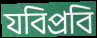
যবিপ্রবি